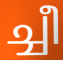
ച്ചീ